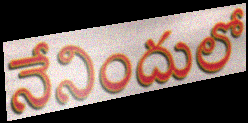
నేనిందులో